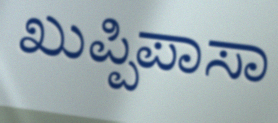
ಖುಪ್ಪಿಪಾಸಾ